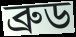
ব্রুড